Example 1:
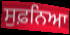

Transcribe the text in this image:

ਸੁਫ਼ਨਿਆ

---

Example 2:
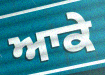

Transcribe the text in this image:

ਆਕੇ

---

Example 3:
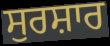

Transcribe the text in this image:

ਸੁਰਸ਼ਾਰ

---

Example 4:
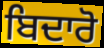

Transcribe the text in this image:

ਬਿਦਾਰੋ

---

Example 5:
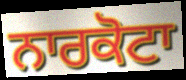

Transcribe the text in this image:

ਨਾਰਕੋਟਾ